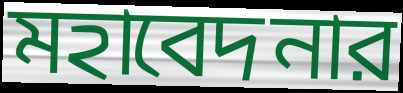
মহাবেদনার